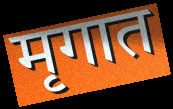
मृगात